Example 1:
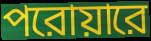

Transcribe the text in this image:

পরোয়ারে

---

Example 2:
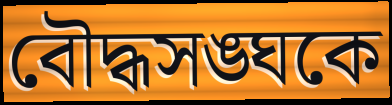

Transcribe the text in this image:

বৌদ্ধসঙ্ঘকে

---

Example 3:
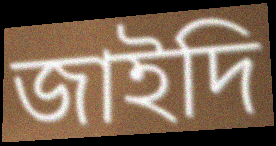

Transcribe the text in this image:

জাইদি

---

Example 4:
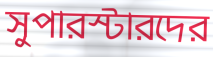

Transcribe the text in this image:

সুপারস্টারদের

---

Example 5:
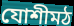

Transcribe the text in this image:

যোশীমঠ